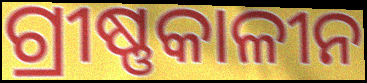
ଗ୍ରୀଷ୍ଣକାଳୀନ